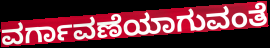
ವರ್ಗಾವಣೆಯಾಗುವಂತೆ